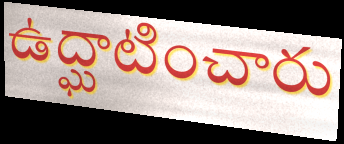
ఉద్ఘాటించారు